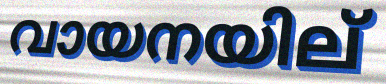
വായനയില്